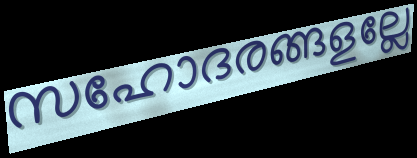
സഹോദരങ്ങളല്ലേ